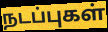
நடப்புகள்